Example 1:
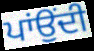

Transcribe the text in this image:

ਪਾਂਉਂਦੀ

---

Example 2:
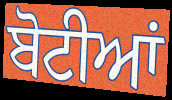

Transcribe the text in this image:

ਬੋਟੀਆਂ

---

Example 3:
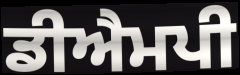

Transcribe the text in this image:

ਡੀਐਮਪੀ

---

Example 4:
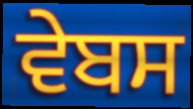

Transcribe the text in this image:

ਵੇਬਸ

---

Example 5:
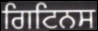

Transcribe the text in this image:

ਗਿਟਿਨਸ